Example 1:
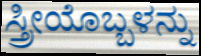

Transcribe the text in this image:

ಸ್ತ್ರೀಯೊಬ್ಬಳನ್ನು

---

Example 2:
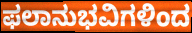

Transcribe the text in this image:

ಫಲಾನುಭವಿಗಳಿಂದ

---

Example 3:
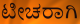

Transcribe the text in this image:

ಟೀಚರಾಗಿ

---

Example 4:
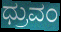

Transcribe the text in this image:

ಧ್ರುವಂ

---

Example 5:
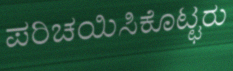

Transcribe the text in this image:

ಪರಿಚಯಿಸಿಕೊಟ್ಟರು